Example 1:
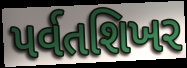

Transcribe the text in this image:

પર્વતશિખર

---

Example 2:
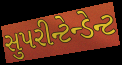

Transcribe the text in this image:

સુપરીન્ટેન્ડેન્ટ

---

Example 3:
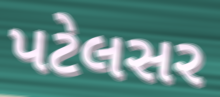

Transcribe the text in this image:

પટેલસર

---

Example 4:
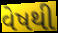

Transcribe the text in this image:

વેષથી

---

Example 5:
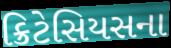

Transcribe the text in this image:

ક્રિટેસિયસના